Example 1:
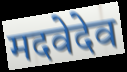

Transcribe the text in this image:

मदवेदेव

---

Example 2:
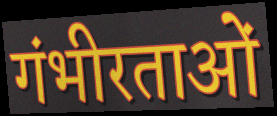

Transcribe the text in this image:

गंभीरताओं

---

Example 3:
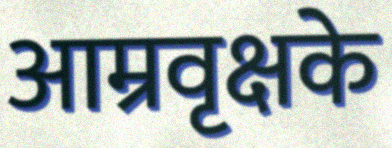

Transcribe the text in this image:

आम्रवृक्षके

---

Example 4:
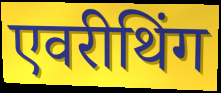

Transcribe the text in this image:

एवरीथिंग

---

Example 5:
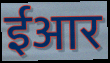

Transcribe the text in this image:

ईआर